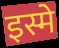
इस्मे